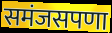
समंजसपणा